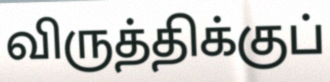
விருத்திக்குப்